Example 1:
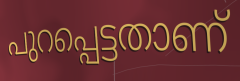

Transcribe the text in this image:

പുറപ്പെട്ടതാണ്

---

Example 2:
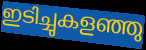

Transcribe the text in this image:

ഇടിച്ചുകളഞ്ഞു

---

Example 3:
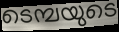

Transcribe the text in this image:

ടെമ്പയുടെ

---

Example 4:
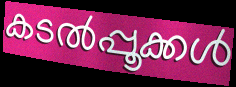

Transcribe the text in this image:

കടൽപ്പൂക്കൾ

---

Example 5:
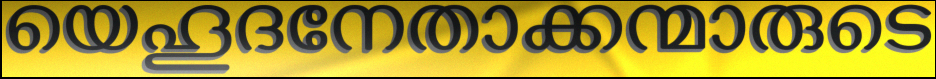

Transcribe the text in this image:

യെഹൂദനേതാക്കന്മാരുടെ